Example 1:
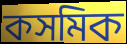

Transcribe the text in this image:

কসমিক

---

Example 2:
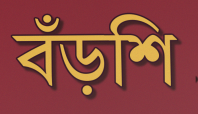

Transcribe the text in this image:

বঁড়শি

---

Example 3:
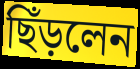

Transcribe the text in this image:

ছিঁড়লেন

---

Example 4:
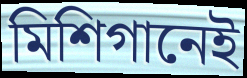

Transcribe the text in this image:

মিশিগানেই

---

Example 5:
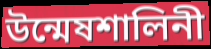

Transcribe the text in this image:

উন্মেষশালিনী